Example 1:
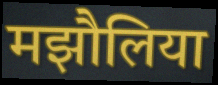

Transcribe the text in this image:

मझौलिया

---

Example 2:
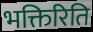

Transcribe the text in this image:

भक्तिरिति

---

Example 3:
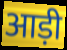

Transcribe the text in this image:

आड़ी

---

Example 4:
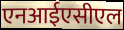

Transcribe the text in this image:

एनआईएसीएल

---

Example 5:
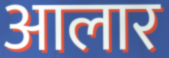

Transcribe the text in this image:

आलार